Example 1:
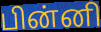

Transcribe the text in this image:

பின்னி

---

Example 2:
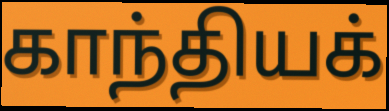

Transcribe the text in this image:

காந்தியக்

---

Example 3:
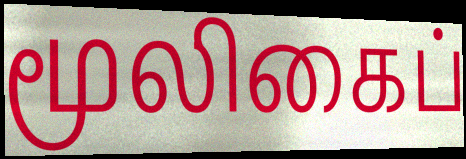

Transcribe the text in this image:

மூலிகைப்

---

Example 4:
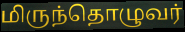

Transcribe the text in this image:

மிருந்தொழுவர்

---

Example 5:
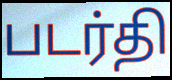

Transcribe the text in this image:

படர்தி